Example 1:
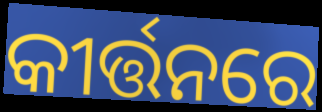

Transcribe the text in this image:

କୀର୍ତ୍ତନରେ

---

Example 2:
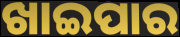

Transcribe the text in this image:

ଖାଇପାର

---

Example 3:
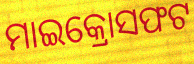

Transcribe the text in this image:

ମାଇକ୍ରୋସଫଟ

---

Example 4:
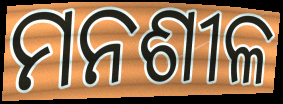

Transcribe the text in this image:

ମନଶୀଳ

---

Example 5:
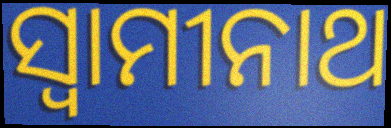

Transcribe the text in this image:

ସ୍ୱାମୀନାଥ